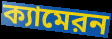
ক্যামেরন